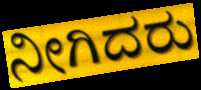
ನೀಗಿದರು